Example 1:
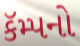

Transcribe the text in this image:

કૅમ્પનો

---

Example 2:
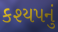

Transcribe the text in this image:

કશ્યપનું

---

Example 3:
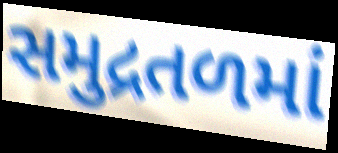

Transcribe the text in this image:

સમુદ્રતળમાં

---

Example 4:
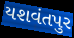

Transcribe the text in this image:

યશવંતપુર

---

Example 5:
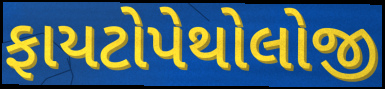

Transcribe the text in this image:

ફાયટોપેથોલોજી